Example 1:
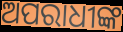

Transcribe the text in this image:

ଅପରାଧୀଙ୍କ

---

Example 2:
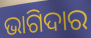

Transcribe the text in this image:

ଭାଗିଦାର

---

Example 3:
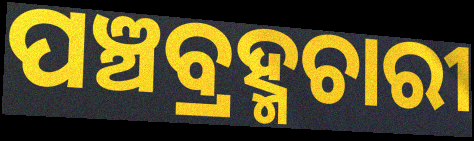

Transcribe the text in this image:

ପଞ୍ଚବ୍ରହ୍ମଚାରୀ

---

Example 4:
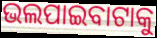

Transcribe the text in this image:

ଭଲପାଇବାଟାକୁ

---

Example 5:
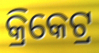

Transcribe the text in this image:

କ୍ରିକେଟ୍ର